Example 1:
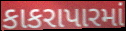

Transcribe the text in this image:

કાકરાપારમાં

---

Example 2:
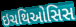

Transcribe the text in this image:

ઇચથિઓસિસ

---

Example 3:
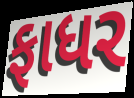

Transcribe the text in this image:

ફાધર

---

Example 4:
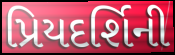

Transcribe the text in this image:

પ્રિયદર્શિની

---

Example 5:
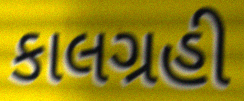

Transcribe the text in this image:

કાલગ્રહી